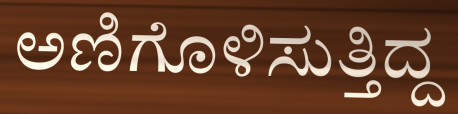
ಅಣಿಗೊಳಿಸುತ್ತಿದ್ದ